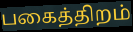
பகைத்திறம்